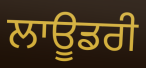
ਲਾਊਡਰੀ